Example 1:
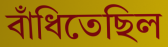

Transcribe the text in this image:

বাঁধিতেছিল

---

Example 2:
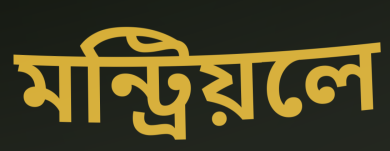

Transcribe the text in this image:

মন্ট্রিয়লে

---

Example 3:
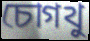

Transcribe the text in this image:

চোগথু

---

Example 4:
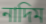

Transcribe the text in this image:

নাদিম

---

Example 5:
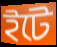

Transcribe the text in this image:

ইটে